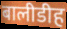
बालीडीह